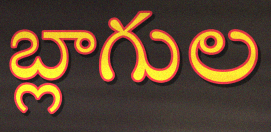
బ్లాగుల